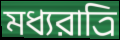
মধ্যরাত্রি